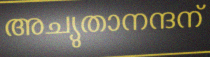
അച്യുതാനന്ദന്